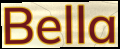
Bella